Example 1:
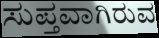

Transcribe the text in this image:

ಸುಪ್ತವಾಗಿರುವ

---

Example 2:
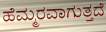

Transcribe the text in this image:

ಹೆಮ್ಮರವಾಗುತ್ತದೆ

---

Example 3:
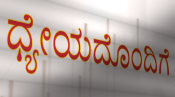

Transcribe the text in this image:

ಧ್ಯೇಯದೊಂದಿಗೆ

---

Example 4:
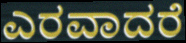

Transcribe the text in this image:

ಎರವಾದರೆ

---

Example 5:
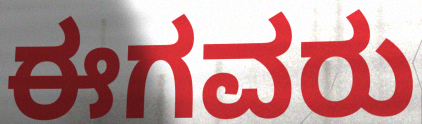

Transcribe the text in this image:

ಈಗವರು